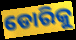
ଡୋରିକୁ